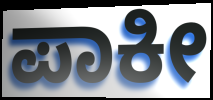
ಪಾಕೀ